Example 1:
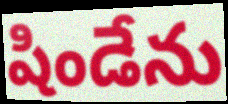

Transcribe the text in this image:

షిండేను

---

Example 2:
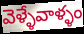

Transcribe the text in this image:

వెళ్ళేవాళ్ళం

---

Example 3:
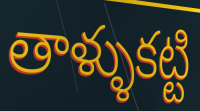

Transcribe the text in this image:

తాళ్ళుకట్టి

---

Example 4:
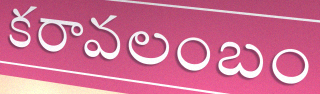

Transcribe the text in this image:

కరావలంబం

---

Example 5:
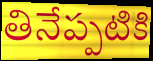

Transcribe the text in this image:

తినేప్పటికి